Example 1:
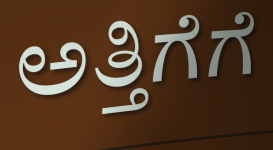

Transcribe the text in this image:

ಅತ್ತಿಗೆಗೆ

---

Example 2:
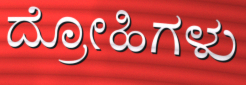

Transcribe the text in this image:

ದ್ರೋಹಿಗಳು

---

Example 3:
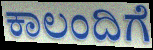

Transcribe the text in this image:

ಕಾಲಂದಿಗೆ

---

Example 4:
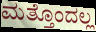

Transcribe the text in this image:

ಮತ್ತೊಂದಲ್ಲ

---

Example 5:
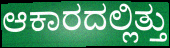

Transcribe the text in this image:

ಆಕಾರದಲ್ಲಿತ್ತು